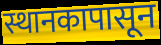
स्थानकापासून